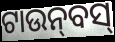
ଟାଉନ୍‍ବସ୍